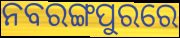
ନବରଙ୍ଗପୁରରେ